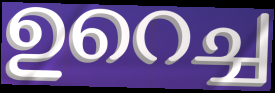
ഉറെച്ച